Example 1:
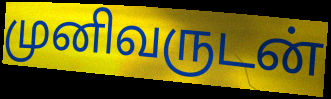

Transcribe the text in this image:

முனிவருடன்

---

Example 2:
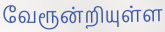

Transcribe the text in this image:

வேரூன்றியுள்ள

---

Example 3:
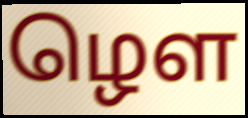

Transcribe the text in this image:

ழௌ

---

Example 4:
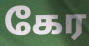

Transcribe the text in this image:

கேர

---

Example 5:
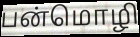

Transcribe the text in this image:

பன்மொழி